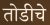
तोडीचे